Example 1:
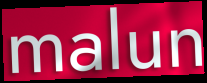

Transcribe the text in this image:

malun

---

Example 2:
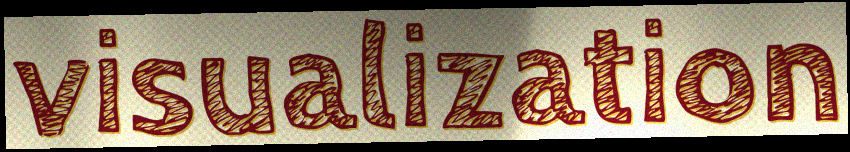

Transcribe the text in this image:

visualization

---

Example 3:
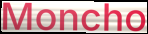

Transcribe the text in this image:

Moncho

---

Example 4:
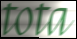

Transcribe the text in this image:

tota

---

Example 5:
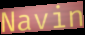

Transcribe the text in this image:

Navin